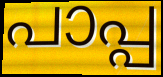
പാപ്പ